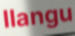
Ilangu